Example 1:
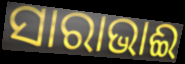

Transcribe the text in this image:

ସାରାଭାଈ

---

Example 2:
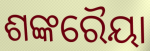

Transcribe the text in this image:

ଶଙ୍କରୈୟା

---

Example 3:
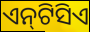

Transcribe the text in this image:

ଏନ୍‌ଟିସିଏ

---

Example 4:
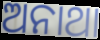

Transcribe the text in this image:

ଅନାଥା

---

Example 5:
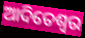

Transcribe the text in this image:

ଆଦିତେଶ୍ଵର